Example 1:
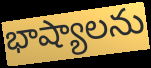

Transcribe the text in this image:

భాష్యాలను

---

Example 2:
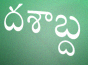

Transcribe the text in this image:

దశాబ్ద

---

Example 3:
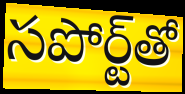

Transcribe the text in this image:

సపోర్ట్‌తో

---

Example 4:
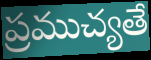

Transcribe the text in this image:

ప్రముచ్యతే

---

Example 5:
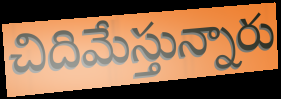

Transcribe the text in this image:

చిదిమేస్తున్నారు